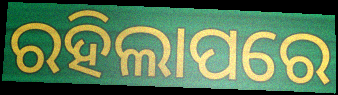
ରହିଲାପରେ